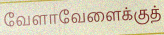
வேளாவேளைக்குத்